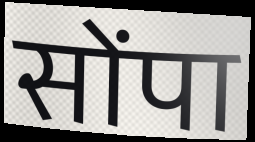
सोंपा